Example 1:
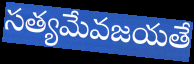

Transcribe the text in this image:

సత్యమేవజయతే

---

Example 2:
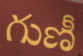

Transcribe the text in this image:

గుణీ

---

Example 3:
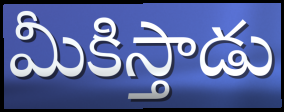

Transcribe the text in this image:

మీకిస్తాడు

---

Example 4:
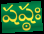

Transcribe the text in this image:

షష్ఠః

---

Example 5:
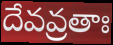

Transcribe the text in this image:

దేవవ్రతాః